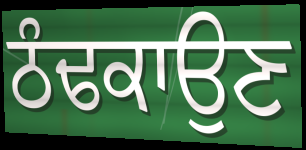
ਠੰਢਕਾਉਣ